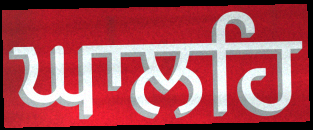
ਘਾਲਹਿ